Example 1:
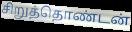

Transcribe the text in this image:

சிறுத்தொண்டன்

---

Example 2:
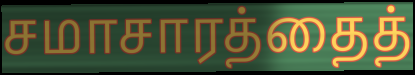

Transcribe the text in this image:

சமாசாரத்தைத்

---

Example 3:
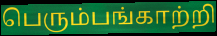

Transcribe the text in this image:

பெரும்பங்காற்றி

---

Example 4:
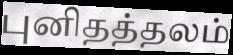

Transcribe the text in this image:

புனிதத்தலம்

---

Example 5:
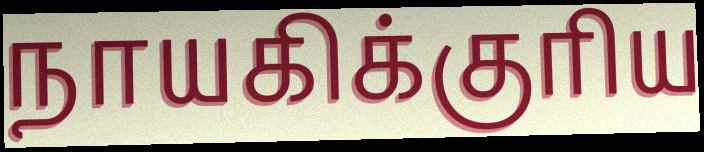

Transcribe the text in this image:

நாயகிக்குரிய